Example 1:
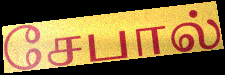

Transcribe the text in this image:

சேபால்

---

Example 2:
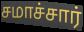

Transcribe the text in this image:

சமாச்சார்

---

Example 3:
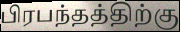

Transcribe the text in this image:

பிரபந்தத்திற்கு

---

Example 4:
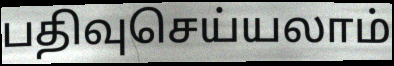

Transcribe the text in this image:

பதிவுசெய்யலாம்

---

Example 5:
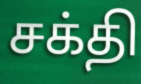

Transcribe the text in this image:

சக்தி